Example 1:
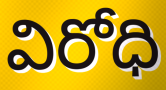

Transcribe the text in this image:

విరోధి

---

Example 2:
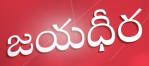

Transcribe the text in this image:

జయధీర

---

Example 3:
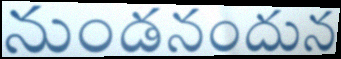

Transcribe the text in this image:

నుండనందున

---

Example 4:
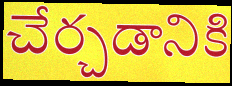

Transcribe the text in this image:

చేర్చడానికి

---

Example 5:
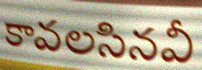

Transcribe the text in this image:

కావలసినవీ